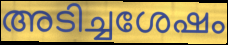
അടിച്ചശേഷം